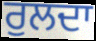
ਰੁਲਦਾ